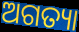
ଅଗତ୍ୟା